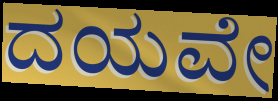
ದಯವೇ